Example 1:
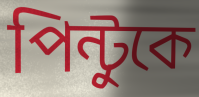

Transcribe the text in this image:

পিন্টুকে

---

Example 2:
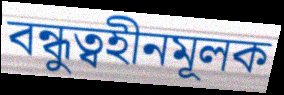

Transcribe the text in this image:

বন্ধুত্বহীনমূলক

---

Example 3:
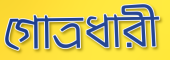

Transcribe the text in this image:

গোত্রধারী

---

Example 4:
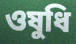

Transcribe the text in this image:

ওষুধি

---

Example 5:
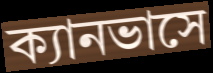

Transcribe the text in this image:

ক্যানভাসে